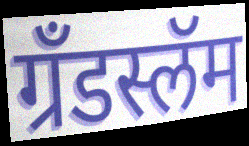
ग्रँडस्लॅम